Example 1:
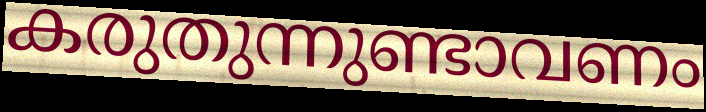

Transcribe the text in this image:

കരുതുന്നുണ്ടാവണം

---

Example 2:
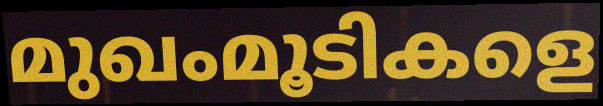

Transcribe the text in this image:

മുഖംമൂടികളെ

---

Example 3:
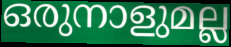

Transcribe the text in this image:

ഒരുനാളുമല്ല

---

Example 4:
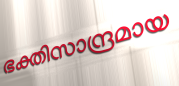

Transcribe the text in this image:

ഭക്തിസാന്ദ്രമായ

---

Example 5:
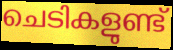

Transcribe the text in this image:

ചെടികളുണ്ട്